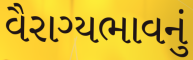
વૈરાગ્યભાવનું